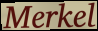
Merkel